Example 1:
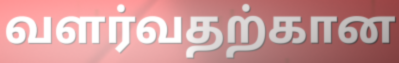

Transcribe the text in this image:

வளர்வதற்கான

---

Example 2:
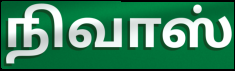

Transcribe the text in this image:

நிவாஸ்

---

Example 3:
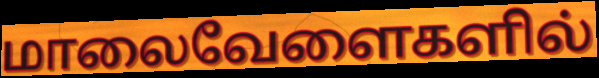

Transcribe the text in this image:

மாலைவேளைகளில்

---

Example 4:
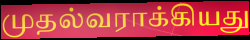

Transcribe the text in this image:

முதல்வராக்கியது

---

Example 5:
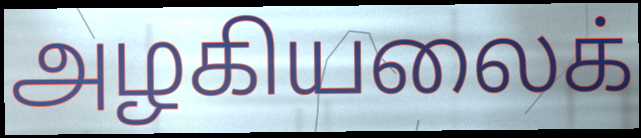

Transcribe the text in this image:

அழகியலைக்